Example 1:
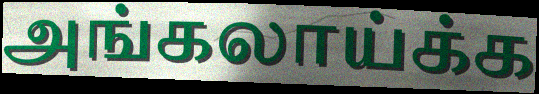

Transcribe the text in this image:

அங்கலாய்க்க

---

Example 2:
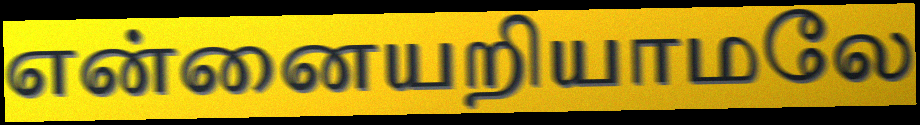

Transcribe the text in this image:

என்னையறியாமலே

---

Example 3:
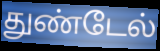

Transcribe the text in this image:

துண்டேல்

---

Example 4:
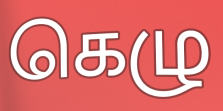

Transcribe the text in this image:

கெழு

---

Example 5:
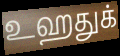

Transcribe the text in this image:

உஹதுக்